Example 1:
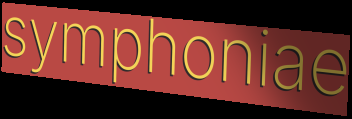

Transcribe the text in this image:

symphoniae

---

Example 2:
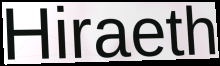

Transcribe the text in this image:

Hiraeth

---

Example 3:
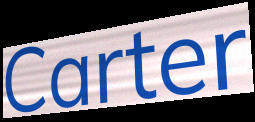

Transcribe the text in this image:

Carter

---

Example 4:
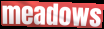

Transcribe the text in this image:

meadows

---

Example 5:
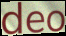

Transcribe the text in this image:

deo